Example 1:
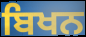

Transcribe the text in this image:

ਬਿਖਨ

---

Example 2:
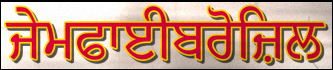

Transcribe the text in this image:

ਜੇਮਫਾਈਬਰੋਜ਼ਿਲ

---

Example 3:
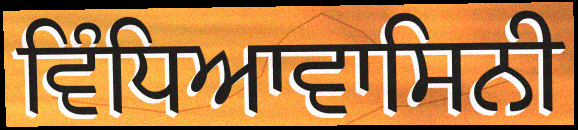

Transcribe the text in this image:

ਵਿੰਧਿਆਵਾਸਿਨੀ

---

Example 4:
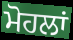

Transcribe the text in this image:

ਮੋਹਲਾਂ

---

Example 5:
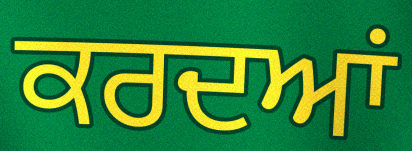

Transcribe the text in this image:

ਕਰਦਆਂ